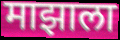
माझाला